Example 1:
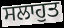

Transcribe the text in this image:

ਸਲਾਹੁਤ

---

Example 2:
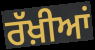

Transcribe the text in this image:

ਰੱਖ਼ੀਆਂ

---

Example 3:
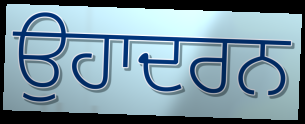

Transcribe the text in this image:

ਉਹਾਦਰਨ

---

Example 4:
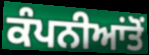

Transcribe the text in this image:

ਕੰਪਨੀਆਂਤੋਂ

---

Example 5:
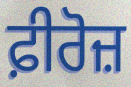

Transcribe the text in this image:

ਫ਼ੀਰੋਜ਼